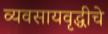
व्यवसायवृद्धीचे